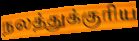
நலத்துக்குரிய